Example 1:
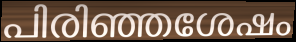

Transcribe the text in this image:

പിരിഞ്ഞശേഷം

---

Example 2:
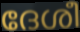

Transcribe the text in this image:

ദേശീ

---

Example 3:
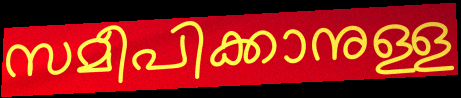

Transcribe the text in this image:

സമീപിക്കാനുള്ള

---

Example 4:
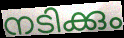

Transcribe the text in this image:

നടിക്കും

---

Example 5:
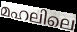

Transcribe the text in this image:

മഹലിലെ